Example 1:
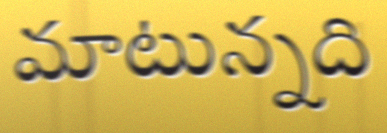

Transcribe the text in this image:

మాటున్నది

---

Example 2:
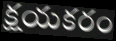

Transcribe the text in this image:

క్షయకరం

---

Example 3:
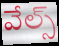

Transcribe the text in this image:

వేల్స్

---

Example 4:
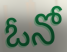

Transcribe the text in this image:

ఓనో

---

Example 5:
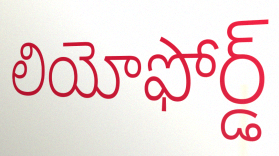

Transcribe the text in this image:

లియోఫోర్డ్